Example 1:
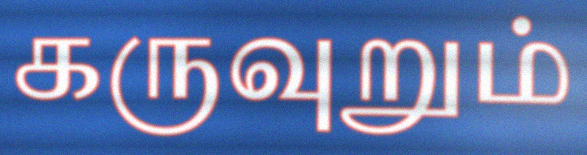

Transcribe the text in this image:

கருவுறும்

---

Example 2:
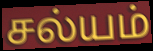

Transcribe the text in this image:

சல்யம்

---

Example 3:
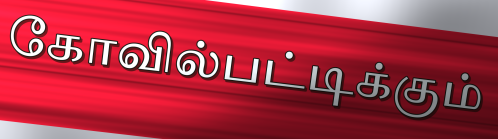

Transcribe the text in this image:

கோவில்பட்டிக்கும்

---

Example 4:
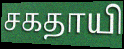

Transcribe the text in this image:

சகதாயி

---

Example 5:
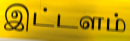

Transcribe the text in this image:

இட்டளம்